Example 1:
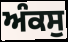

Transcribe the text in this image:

ਅੰਕਸੁ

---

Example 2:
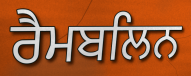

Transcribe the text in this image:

ਰੈਮਬਲਿਨ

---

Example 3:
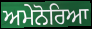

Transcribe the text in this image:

ਅਮੇਨੋਰਿਆ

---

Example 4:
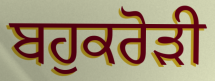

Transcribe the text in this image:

ਬਹੁਕਰੋਡ਼ੀ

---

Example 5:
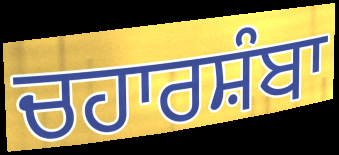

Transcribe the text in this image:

ਚਹਾਰਸ਼ੰਬਾ